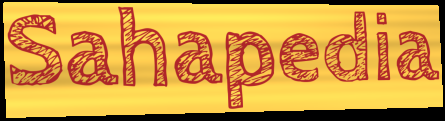
Sahapedia